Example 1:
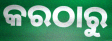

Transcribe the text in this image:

କରଠାରୁ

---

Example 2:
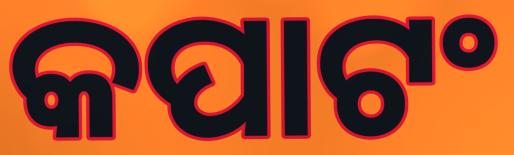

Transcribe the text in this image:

କପାଟଂ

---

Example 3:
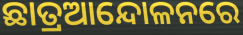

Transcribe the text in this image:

ଛାତ୍ରଆନ୍ଦୋଳନରେ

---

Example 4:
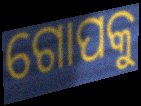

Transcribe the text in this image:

ଗୋପକୁ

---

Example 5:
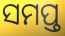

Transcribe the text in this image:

ସମପ୍ତ